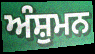
ਅੰਸ਼ੁਮਨ